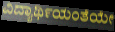
ವಿದ್ಯಾರ್ಥಿಯಂತೆಯೇ